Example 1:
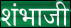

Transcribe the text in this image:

शंभाजी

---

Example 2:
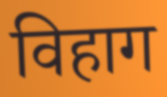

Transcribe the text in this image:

विहाग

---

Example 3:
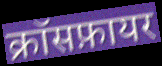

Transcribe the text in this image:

क्रॉसफ़ायर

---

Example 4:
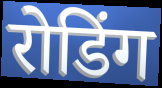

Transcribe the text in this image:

रोडिंग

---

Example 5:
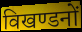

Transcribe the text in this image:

विखण्डनों